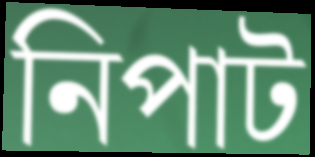
নিপাট